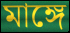
মাঙ্গে